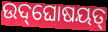
ଉଦ୍‌ଘୋଷୟତ୍